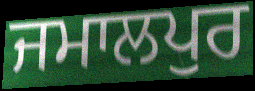
ਜਮਾਲਪੁਰ